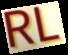
RL